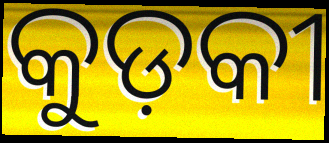
କୁଡ଼କୀ